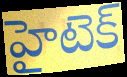
హైటెక్